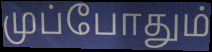
முப்போதும்